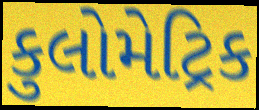
કુલોમેટ્રિક